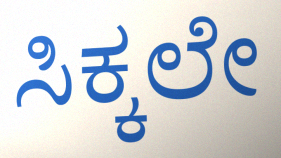
ಸಿಕ್ಕಲೇ